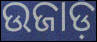
ଉଜାଡ଼